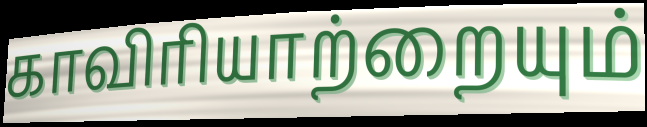
காவிரியாற்றையும்